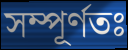
সম্পূর্ণতঃ